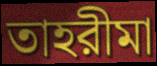
তাহরীমা